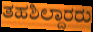
ತಹಶಿಲ್ದಾರರು